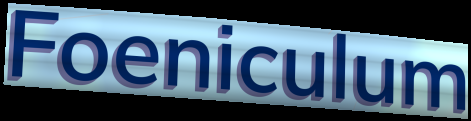
Foeniculum